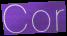
Cor